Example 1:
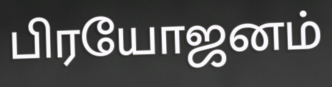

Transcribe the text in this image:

பிரயோஜனம்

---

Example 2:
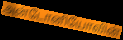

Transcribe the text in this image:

அன்டோனியோவின்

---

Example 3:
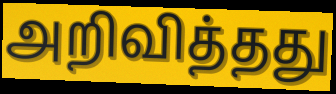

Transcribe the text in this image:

அறிவித்தது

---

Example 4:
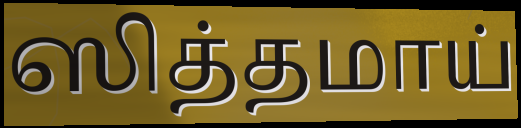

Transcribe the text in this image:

ஸித்தமாய்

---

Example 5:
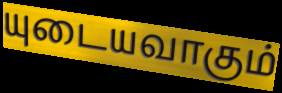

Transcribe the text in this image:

யுடையவாகும்